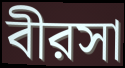
বীরসা